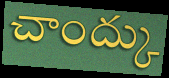
చాంద్కు